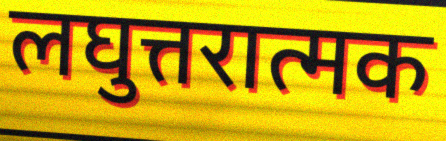
लघुत्तरात्मक